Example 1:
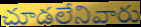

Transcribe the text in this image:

చూడలేనివారు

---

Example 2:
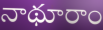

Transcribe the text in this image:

నాథూరాం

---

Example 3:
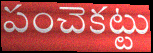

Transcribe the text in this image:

పంచెకట్టు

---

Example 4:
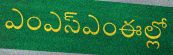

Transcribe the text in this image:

ఎంఎస్ఎంఈల్లో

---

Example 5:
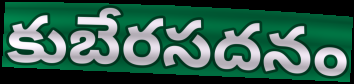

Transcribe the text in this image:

కుబేరసదనం